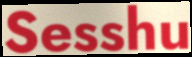
Sesshu